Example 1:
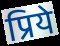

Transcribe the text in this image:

प्रिये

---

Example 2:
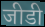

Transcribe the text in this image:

जीडी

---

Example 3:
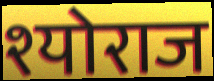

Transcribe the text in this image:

श्योराज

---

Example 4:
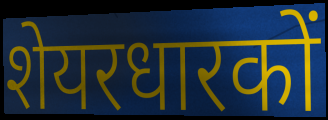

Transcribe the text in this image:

शेयरधारकों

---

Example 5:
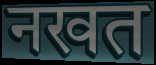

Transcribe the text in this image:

नखत